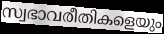
സ്വഭാവരീതികളെയും